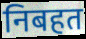
निबहत